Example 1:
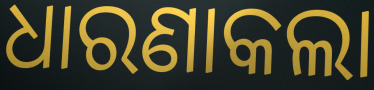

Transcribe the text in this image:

ଧାରଣାକଲା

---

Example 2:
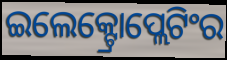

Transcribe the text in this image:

ଇଲେକ୍ଟ୍ରୋପ୍ଲେଟିଂର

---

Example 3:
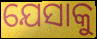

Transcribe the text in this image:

ଯେସାକୁ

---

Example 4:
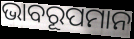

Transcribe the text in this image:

ଭାବରୂପମାନ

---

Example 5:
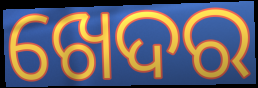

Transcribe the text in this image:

ଖେଦର